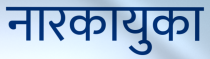
नारकायुका